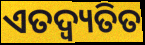
ଏତଦ୍ବ୍ୟତିତ